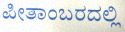
ಪೀತಾಂಬರದಲ್ಲಿ